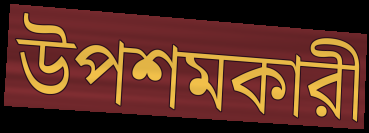
উপশমকারী